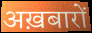
अख़बारों